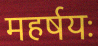
महर्षयः